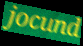
jocund